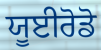
ਯੂਈਰੋਡੋ